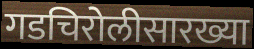
गडचिरोलीसारख्या